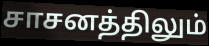
சாசனத்திலும்